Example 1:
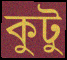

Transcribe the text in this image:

কুটু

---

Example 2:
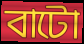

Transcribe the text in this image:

বাটো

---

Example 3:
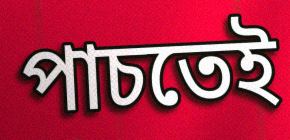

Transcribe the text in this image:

পাচতেই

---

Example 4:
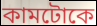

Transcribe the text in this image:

কামটোকে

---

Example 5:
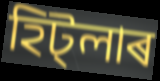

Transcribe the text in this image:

হিট্‌লাৰ